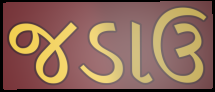
જડાઉ